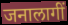
जनालागीं